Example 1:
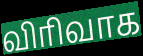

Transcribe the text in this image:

விரிவாக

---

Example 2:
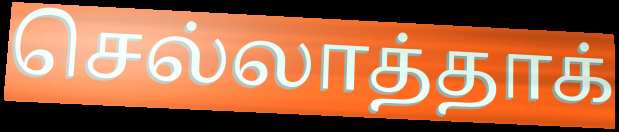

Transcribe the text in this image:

செல்லாத்தாக்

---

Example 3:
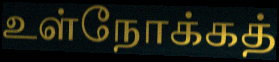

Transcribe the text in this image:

உள்நோக்கத்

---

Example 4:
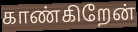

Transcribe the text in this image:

காண்கிறேன்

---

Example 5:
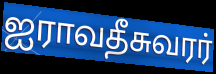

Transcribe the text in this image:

ஐராவதீசுவரர்